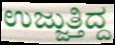
ಉಜ್ಜುತ್ತಿದ್ದ